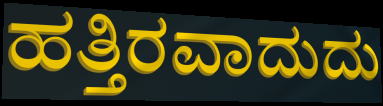
ಹತ್ತಿರವಾದುದು